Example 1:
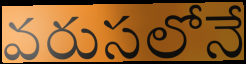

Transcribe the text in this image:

వరుసలోనే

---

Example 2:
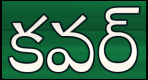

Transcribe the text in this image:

కవర్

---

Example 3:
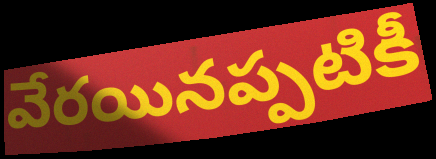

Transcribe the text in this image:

వేరయినప్పటికీ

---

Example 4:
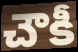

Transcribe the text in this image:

చౌకీ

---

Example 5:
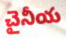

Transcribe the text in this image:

చైనీయ